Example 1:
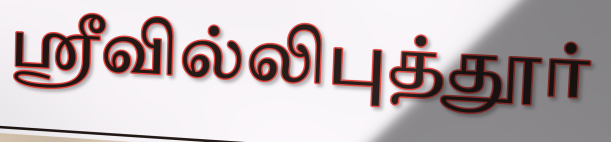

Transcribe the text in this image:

ஸ்ரீவில்லிபுத்தூர்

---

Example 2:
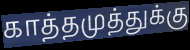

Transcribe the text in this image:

காத்தமுத்துக்கு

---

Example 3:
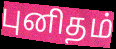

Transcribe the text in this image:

புனிதம்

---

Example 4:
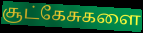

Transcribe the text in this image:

சூட்கேசுகளை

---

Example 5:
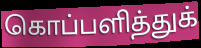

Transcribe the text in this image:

கொப்பளித்துக்